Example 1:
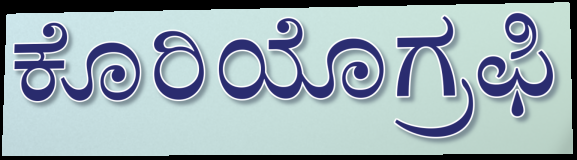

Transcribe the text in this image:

ಕೊರಿಯೊಗ್ರಫಿ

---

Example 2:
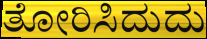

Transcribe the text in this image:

ತೋರಿಸಿದುದು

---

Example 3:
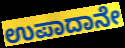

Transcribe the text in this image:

ಉಪಾದಾನೇ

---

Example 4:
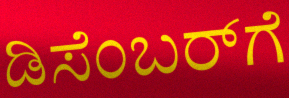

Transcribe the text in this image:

ಡಿಸೆಂಬರ್‌ಗೆ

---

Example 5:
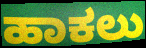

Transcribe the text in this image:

ಹಾಕಲು